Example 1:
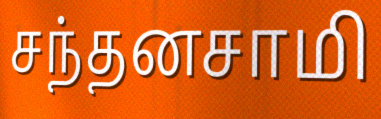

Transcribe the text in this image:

சந்தனசாமி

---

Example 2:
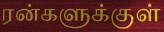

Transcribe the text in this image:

ரன்களுக்குள்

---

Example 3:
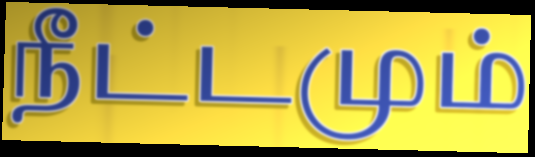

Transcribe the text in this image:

நீட்டமும்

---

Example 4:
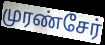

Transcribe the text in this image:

முரண்சேர்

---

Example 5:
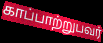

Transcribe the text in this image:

காப்பாற்றுபவர்